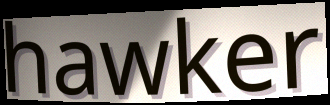
hawker